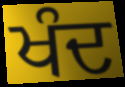
ਖੰਦ